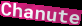
Chanute